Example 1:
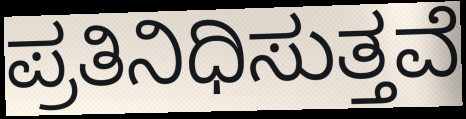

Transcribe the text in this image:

ಪ್ರತಿನಿಧಿಸುತ್ತವೆ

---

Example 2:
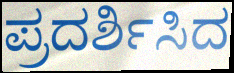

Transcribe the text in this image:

ಪ್ರದರ್ಶಿಸಿದ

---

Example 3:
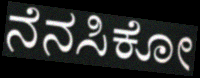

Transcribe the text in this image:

ನೆನಸಿಕೋ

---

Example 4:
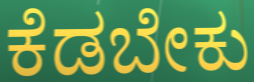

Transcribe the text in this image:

ಕೆಡಬೇಕು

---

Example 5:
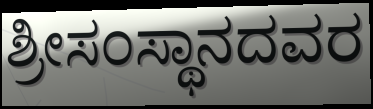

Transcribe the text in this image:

ಶ್ರೀಸಂಸ್ಥಾನದವರ